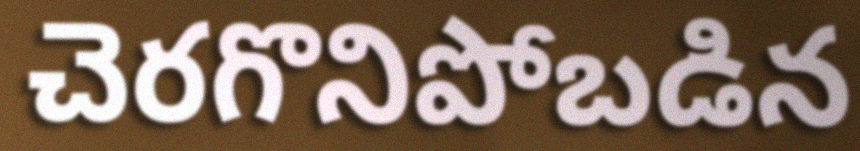
చెరగొనిపోబడిన